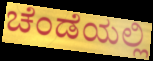
ಚೆಂಡೆಯಲ್ಲಿ